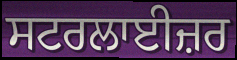
ਸਟਰਲਾਈਜ਼ਰ